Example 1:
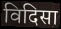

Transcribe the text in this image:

विदिसा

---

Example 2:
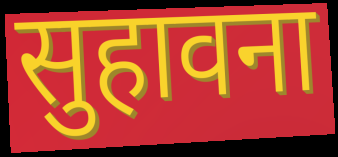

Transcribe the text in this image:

सुहावना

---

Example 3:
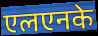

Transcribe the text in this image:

एलएनके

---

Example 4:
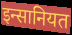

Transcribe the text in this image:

इन्सानियत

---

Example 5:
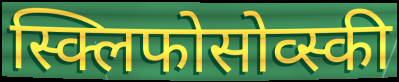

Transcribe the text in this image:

स्क्लिफोसोव्स्की